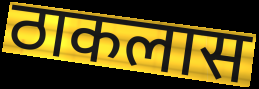
ठाकलास